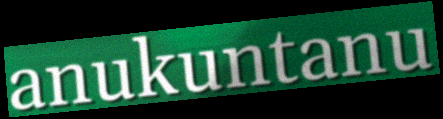
anukuntanu